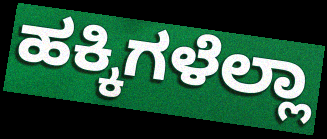
ಹಕ್ಕಿಗಳೆಲ್ಲಾ